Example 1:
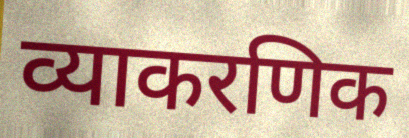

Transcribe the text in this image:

व्याकरणिक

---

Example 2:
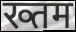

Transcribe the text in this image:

ख्तम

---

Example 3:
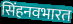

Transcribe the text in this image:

सिंहनवभारत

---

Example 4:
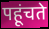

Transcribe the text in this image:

पहूंचते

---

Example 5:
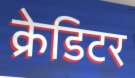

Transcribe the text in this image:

क्रेडिटर